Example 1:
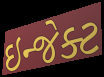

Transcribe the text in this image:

ઇન્જેક્ટ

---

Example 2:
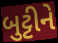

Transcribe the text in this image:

બુટ્ટીને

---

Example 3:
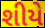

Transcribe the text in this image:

શીયે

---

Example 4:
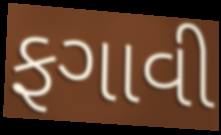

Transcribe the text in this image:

ફગાવી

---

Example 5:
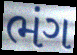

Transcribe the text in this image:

ભંગ